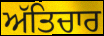
ਅੱਤਿਚਾਰ